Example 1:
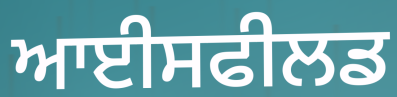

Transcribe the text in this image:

ਆਈਸਫੀਲਡ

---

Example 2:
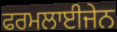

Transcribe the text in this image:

ਫਰਮਲਾਈਜੇਨ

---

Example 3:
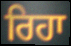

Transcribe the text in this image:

ਰਿਹਾ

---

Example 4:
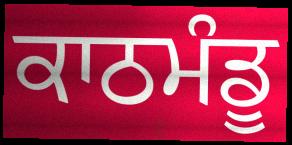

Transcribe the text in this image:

ਕਾਠਮੰਡੂ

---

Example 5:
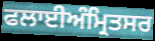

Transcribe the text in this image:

ਫਲਾਈਅੰਮ੍ਰਿਤਸਰ